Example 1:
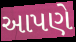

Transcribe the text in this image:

આપણે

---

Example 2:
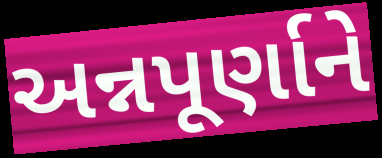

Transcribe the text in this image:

અન્નપૂર્ણાને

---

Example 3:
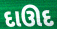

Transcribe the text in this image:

દાઊદ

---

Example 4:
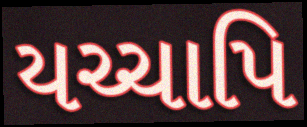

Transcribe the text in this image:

યચ્ચાપિ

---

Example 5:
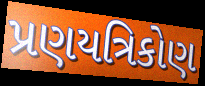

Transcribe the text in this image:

પ્રણયત્રિકોણ